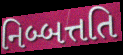
નિબ્બત્તતિ